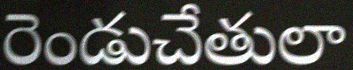
రెండుచేతులా